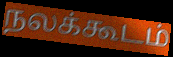
நலக்கூடம்